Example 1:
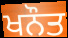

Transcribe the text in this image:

ਖਨੌਤ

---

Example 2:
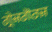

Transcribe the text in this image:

ਗ੍ਰੇਜ਼ਗੋਰਜ਼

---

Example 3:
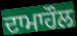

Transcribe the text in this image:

ਦਾਮਾਹੌਲ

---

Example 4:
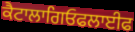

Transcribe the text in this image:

ਕੈਟਾਲਾਗਿਓਫਲਾਈਫ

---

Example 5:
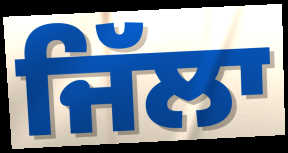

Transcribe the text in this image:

ਜਿੱਲਾ